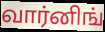
வார்னிங்